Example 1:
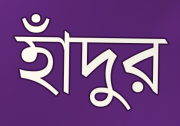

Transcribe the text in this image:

হাঁদুর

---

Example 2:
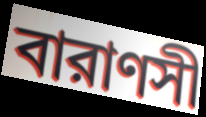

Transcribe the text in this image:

বারাণসী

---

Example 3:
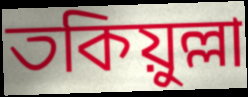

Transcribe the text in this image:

তকিয়ুল্লা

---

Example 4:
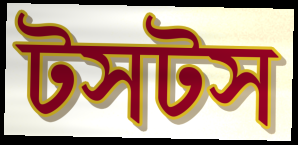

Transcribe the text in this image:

টসটস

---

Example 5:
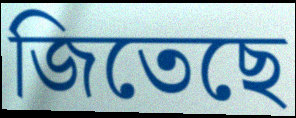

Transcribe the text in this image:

জিতেছে